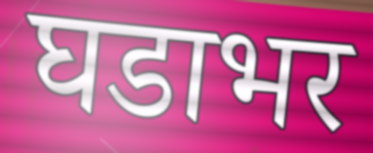
घडाभर